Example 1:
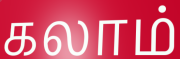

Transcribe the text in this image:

கலாம்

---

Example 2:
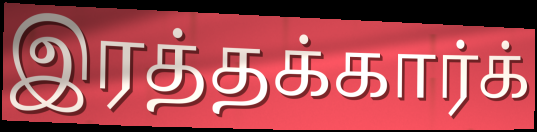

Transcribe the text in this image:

இரத்தக்கார்க்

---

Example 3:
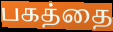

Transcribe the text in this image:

பகத்தை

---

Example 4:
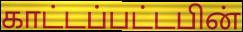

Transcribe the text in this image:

காட்டப்பட்டபின்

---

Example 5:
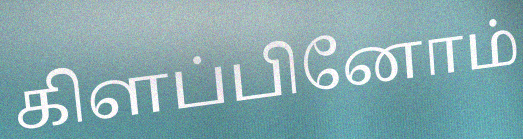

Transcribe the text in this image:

கிளப்பினோம்